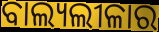
ବାଲ୍ୟଲୀଳାର